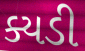
ક્યડી